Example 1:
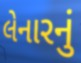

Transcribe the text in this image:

લેનારનું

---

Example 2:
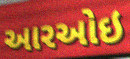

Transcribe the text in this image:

આરઓઇ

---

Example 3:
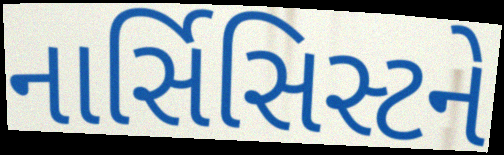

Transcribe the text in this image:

નાર્સિસિસ્ટને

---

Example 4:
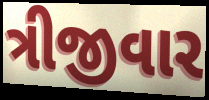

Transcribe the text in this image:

ત્રીજીવાર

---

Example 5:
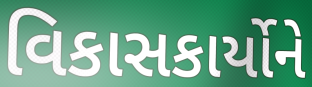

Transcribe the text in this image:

વિકાસકાર્યોને